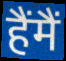
हैंमैं